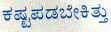
ಕಷ್ಟಪಡಬೇಕಿತ್ತು